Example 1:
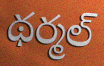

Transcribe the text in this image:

థర్మల్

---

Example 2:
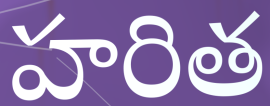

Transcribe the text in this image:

హరిత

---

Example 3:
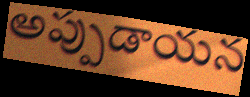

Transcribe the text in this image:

అప్పుడాయన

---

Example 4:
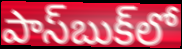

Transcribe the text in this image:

పాస్‌బుక్‌లో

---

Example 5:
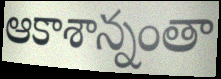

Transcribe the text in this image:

ఆకాశాన్నంతా